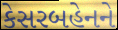
કેસરબહેનને